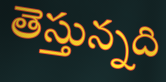
తెస్తున్నది